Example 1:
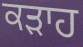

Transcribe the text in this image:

ਕੜਾਹ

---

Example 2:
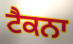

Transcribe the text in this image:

ਟੈਕਨਾ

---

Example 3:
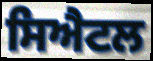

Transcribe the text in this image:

ਸਿਐਟਲ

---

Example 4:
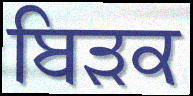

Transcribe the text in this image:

ਬਿੜਕ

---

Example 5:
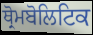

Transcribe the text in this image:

ਥ੍ਰੋਮਬੋਲਿਟਿਕ